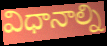
విధానాల్ని